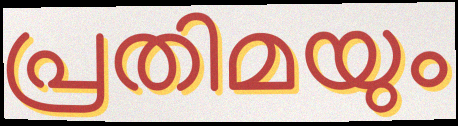
പ്രതിമയും